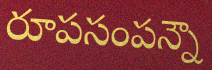
రూపసంపన్నౌ